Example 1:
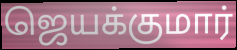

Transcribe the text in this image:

ஜெயக்குமார்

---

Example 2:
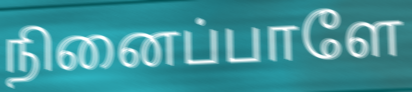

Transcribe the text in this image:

நினைப்பாளே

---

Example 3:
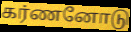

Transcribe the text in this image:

கர்ணனோடு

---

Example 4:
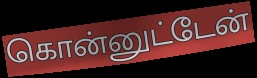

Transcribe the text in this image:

கொன்னுட்டேன்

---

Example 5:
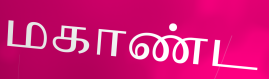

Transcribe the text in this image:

மகாண்ட